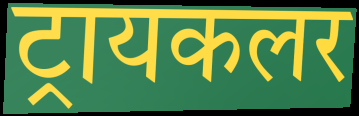
ट्रायकलर